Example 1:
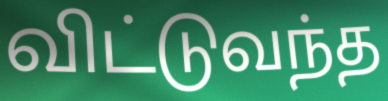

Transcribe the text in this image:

விட்டுவந்த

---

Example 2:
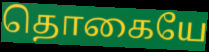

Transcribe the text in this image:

தொகையே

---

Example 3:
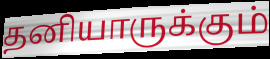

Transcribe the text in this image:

தனியாருக்கும்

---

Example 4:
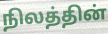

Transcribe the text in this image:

நிலத்தின்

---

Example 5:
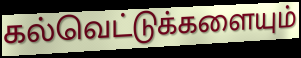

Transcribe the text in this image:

கல்வெட்டுக்களையும்